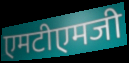
एमटीएमजी